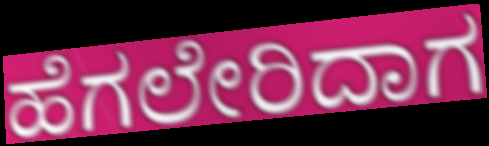
ಹೆಗಲೇರಿದಾಗ